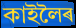
কাইলৈৰ